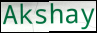
Akshay